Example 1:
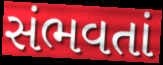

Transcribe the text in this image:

સંભવતાં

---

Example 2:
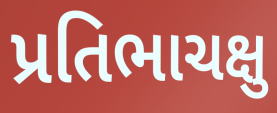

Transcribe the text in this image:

પ્રતિભાચક્ષુ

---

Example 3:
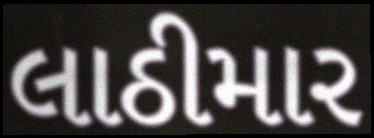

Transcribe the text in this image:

લાઠીમાર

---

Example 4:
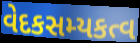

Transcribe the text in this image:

વેદકસમ્યકત્વ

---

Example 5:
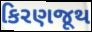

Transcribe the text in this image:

કિરણજૂથ